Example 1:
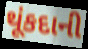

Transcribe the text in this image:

થૂંકદાની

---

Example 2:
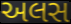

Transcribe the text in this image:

અલસ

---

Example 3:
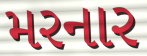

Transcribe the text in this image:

મરનાર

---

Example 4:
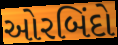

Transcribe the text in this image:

ઓરબિંદો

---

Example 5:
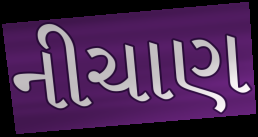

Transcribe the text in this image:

નીચાણ